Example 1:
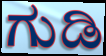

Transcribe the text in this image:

ಗುಡಿ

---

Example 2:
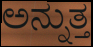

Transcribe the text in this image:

ಅನ್ನುತ್ತ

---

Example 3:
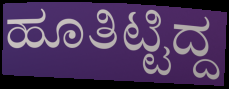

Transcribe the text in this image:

ಹೂತಿಟ್ಟಿದ್ದ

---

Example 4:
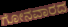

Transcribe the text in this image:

ಗೋನವಾರದ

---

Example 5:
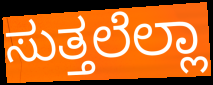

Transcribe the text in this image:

ಸುತ್ತಲೆಲ್ಲಾ